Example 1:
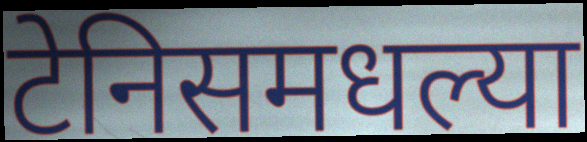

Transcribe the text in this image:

टेनिसमधल्या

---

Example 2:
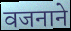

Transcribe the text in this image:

वजनाने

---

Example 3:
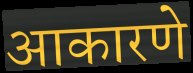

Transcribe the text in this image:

आकारणे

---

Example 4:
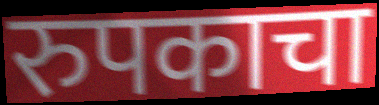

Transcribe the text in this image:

रुपकाचा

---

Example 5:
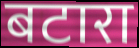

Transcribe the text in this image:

बटारा